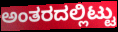
ಅಂತರದಲ್ಲಿಟ್ಟು